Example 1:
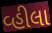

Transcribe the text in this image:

વ્હીલા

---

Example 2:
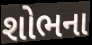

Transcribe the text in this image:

શોભના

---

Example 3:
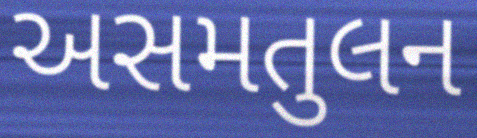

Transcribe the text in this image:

અસમતુલન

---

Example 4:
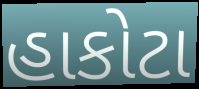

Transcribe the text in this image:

હાકોટા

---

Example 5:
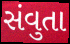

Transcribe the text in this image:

સંવુતા